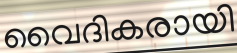
വൈദികരായി